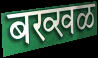
बख्खळ